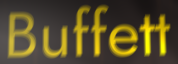
Buffett